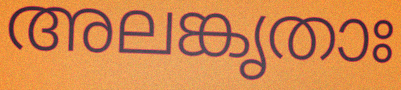
അലങ്കൃതാഃ